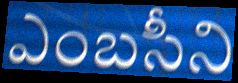
ఎంబసీని